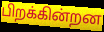
பிறக்கின்றன